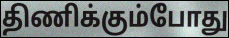
திணிக்கும்போது